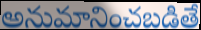
అనుమానించబడితే